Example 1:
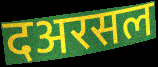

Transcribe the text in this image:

दअरसल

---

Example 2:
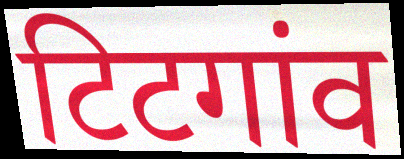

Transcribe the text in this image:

टिटगांव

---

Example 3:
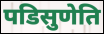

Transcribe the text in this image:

पडिसुणेति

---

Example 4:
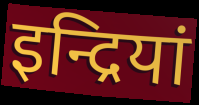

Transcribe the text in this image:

इन्द्रियां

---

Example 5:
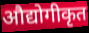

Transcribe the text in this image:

औद्योगीकृत